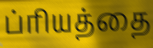
ப்ரியத்தை